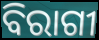
ବିରାଗୀ